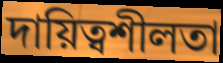
দায়িত্বশীলতা